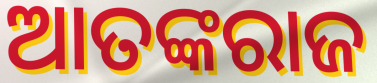
ଆତଙ୍କରାଜ